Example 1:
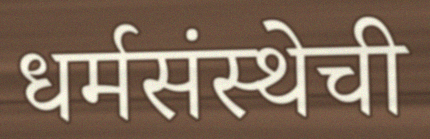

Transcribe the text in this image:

धर्मसंस्थेची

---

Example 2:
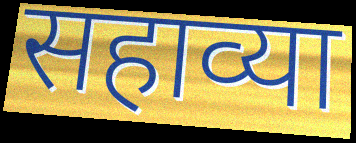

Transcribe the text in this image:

सहाव्या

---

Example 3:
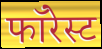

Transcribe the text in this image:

फॉरेस्ट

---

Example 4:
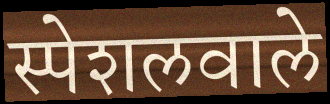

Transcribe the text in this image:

स्पेशलवाले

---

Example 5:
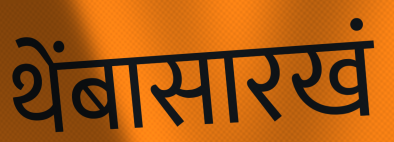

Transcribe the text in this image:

थेंबासारखं